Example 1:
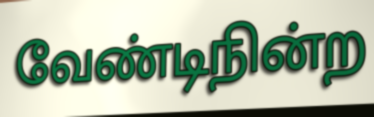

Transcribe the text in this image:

வேண்டிநின்ற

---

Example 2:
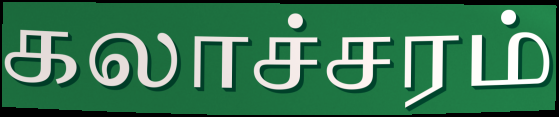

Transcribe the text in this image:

கலாச்சரம்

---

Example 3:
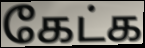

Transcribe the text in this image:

கேட்க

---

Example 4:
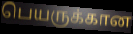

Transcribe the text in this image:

பெயருக்கான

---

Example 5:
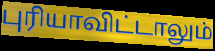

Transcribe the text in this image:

புரியாவிட்டாலும்